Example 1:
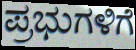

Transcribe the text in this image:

ಪ್ರಭುಗಳಿಗೆ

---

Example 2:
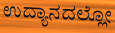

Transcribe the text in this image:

ಉದ್ಯಾನದಲ್ಲೋ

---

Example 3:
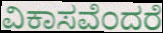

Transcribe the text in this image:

ವಿಕಾಸವೆಂದರೆ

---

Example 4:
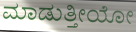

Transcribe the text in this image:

ಮಾಡುತ್ತೀಯೋ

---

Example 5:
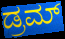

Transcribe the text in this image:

ಡ್ರಮ್